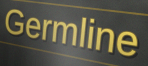
Germline